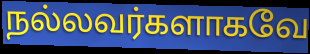
நல்லவர்களாகவே